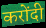
करोंदी